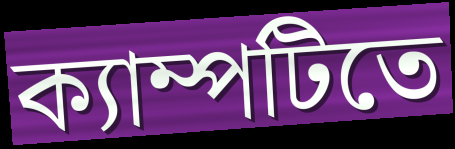
ক্যাম্পটিতে